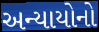
અન્યાયોનો